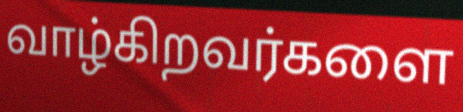
வாழ்கிறவர்களை